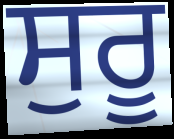
ਸੁਰੂ